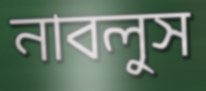
নাবলুস